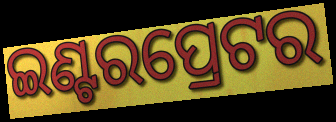
ଇଣ୍ଟରପ୍ରେଟର